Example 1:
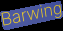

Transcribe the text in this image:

Barwing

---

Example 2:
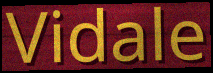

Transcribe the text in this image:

Vidale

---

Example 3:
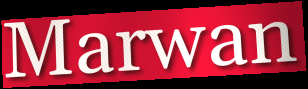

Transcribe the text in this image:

Marwan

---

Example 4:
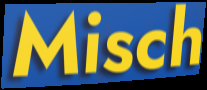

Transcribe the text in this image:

Misch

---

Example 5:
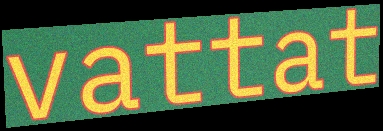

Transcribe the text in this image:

vattat